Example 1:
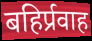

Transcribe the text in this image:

बहिर्प्रवाह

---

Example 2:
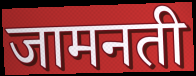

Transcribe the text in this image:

जामनती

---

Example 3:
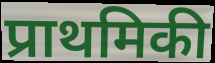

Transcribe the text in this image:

प्राथमिकी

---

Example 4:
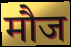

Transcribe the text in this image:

मौज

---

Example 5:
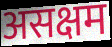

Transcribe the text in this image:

असक्षम